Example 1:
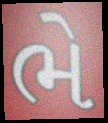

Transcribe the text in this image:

ભે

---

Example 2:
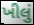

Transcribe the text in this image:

ખીલું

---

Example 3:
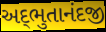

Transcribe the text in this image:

અદ્‌ભુતાનંદજી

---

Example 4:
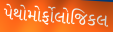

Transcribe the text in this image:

પેથોમોર્ફોલોજિકલ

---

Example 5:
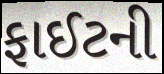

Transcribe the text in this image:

ફાઈટની